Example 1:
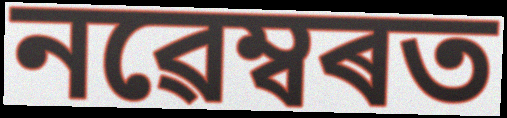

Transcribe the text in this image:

নৱেম্বৰত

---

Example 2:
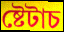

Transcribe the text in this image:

ষ্টেটাচ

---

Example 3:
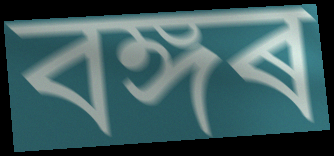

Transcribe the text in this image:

বঙ্গৰ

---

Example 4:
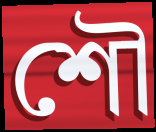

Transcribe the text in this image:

শৌ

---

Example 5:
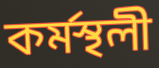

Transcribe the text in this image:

কৰ্মস্থলী